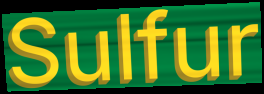
Sulfur